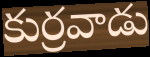
కుర్రవాడు